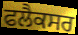
ਫਲੈਕਸਰ